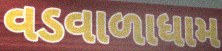
વડવાળાધામ